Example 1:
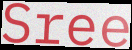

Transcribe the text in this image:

Sree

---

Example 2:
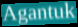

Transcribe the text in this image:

Agantuk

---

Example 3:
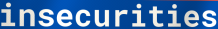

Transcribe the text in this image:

insecurities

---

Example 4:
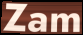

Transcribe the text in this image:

Zam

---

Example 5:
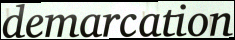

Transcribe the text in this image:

demarcation